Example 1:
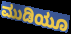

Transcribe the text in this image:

ಮುಡಿಯೂ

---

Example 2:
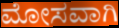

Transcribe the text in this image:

ಮೋಸವಾಗಿ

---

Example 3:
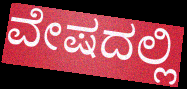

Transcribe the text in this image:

ವೇಷದಲ್ಲಿ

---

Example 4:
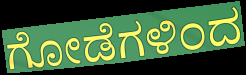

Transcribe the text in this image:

ಗೋಡೆಗಳಿಂದ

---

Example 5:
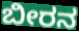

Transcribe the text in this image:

ಬೀರನ